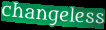
changeless